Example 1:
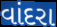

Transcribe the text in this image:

વાંદરા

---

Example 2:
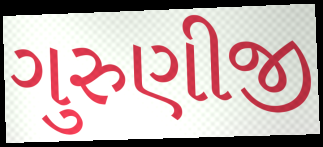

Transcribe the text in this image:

ગુરુણીજી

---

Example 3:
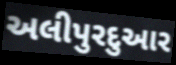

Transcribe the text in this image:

અલીપુરદુઆર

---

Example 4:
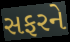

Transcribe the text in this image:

સફરને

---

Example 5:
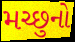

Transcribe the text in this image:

મચ્છુનો